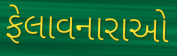
ફેલાવનારાઓ